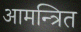
आमन्त्रित